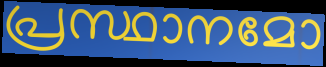
പ്രസ്ഥാനമോ